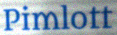
Pimlott